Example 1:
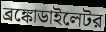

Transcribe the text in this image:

ব্রঙ্কোডাইলেটর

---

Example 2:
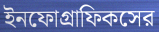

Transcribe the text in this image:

ইনফোগ্রাফিকসের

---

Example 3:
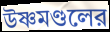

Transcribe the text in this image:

উষ্ণমণ্ডলের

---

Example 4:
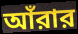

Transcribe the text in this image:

আঁরার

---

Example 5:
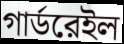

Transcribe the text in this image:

গার্ডরেইল